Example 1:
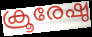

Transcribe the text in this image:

ക്രൂരേഷു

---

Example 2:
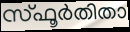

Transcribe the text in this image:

സ്ഫൂർതിതാ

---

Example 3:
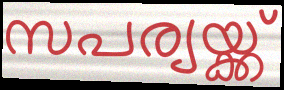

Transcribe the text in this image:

സപര്യയ്ക്ക്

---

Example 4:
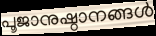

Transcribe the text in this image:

പൂജാനുഷ്ഠാനങ്ങൾ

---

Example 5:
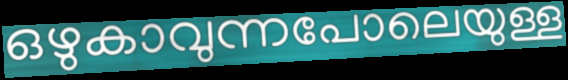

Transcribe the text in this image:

ഒഴുകാവുന്നപോലെയുള്ള